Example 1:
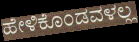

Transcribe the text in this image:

ಹೇಳಿಕೊಂಡವಳಲ್ಲ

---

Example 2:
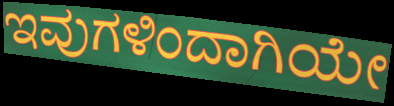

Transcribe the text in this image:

ಇವುಗಳಿಂದಾಗಿಯೇ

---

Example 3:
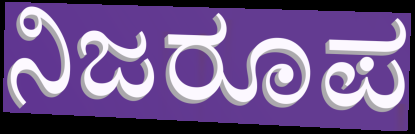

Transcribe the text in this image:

ನಿಜರೂಪ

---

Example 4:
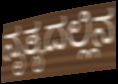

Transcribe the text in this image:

ನೃತ್ಯದಲ್ಲಿನ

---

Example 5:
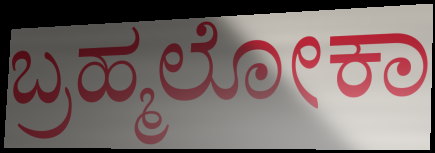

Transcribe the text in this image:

ಬ್ರಹ್ಮಲೋಕಾ